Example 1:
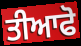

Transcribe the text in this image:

ਤੀਆਫੋ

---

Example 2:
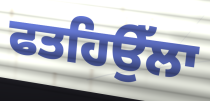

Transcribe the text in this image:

ਫਤਹਿਉੱਲਾ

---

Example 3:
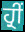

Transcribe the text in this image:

ਹ੍ਰੀਂ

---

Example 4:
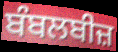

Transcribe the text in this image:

ਬੰਬਲਬੀਜ਼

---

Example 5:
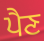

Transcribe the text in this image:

ਪੈਣ